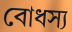
বোধস্য